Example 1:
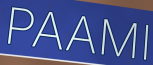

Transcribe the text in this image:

PAAMI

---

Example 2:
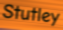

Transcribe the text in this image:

Stutley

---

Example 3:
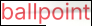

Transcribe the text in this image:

ballpoint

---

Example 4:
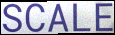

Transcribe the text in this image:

SCALE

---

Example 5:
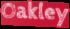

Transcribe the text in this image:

Oakley